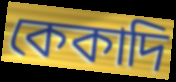
কেকাদি